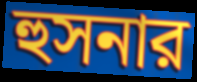
হুসনার